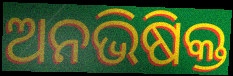
ଅନଭିଷିକ୍ତ